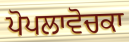
ਪੋਪਲਾਵੋਚਕਾ